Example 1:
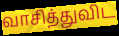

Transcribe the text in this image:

வாசித்துவிட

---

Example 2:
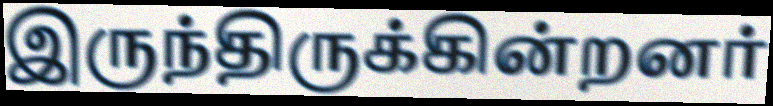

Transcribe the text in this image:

இருந்திருக்கின்றனர்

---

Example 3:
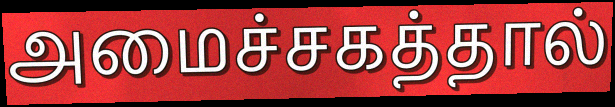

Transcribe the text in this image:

அமைச்சகத்தால்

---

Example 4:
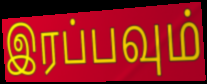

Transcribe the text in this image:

இரப்பவும்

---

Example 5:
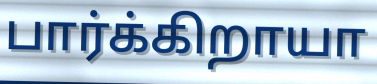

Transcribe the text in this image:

பார்க்கிறாயா